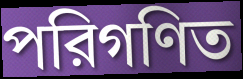
পরিগণিত